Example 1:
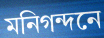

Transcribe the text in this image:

মনিগন্দনে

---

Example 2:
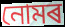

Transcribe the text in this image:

নোমৰ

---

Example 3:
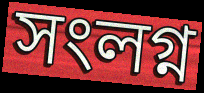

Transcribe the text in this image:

সংলগ্ন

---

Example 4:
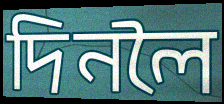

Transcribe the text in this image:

দিনলৈ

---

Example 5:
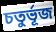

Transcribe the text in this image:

চতুৰ্ভূজ